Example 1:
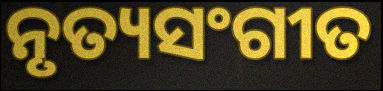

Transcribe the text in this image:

ନୃତ୍ୟସଂଗୀତ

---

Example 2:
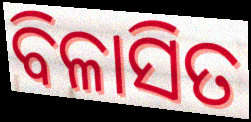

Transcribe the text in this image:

ବିଳାସିତ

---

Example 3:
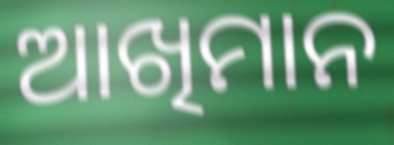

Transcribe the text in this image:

ଆଖିମାନ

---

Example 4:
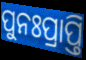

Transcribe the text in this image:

ପୁନଃପ୍ରାପ୍ତି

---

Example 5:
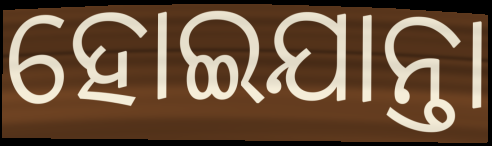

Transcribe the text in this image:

ହୋଇଯାନ୍ତା